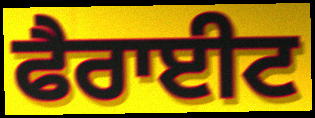
ਫੈਰਾਈਟ